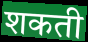
शकती